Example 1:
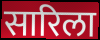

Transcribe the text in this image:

सारिला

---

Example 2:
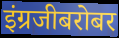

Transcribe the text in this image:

इंग्रजीबरोबर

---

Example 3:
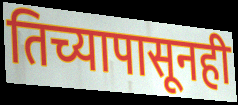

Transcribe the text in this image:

तिच्यापासूनही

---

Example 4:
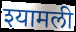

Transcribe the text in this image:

श्यामली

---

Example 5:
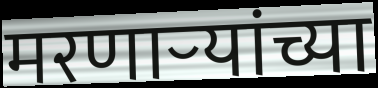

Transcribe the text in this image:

मरणाऱ्यांच्या